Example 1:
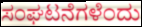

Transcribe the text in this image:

ಸಂಘಟನೆಗಳೆಂದು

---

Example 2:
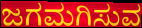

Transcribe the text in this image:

ಜಗಮಗಿಸುವ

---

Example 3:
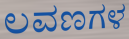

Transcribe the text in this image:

ಲವಣಗಳ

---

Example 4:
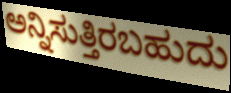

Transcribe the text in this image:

ಅನ್ನಿಸುತ್ತಿರಬಹುದು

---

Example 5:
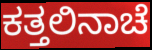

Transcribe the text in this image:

ಕತ್ತಲಿನಾಚೆ